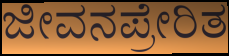
ಜೀವನಪ್ರೇರಿತ